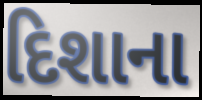
દિશાના